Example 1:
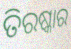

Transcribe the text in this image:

ତିରଷ୍କାର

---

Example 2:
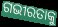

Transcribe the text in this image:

ଗଭୀରତାକୁ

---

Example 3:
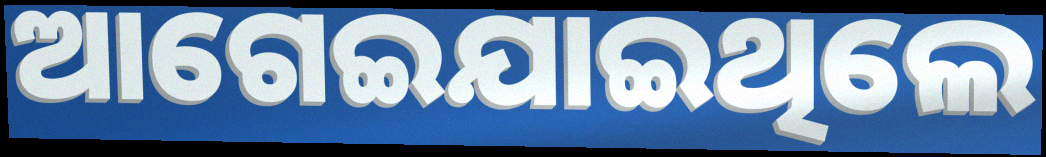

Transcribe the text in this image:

ଆଗେଇଯାଇଥିଲେ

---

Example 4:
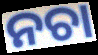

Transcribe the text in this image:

ନଚା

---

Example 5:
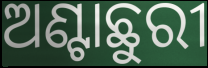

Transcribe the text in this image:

ଅଣ୍ଟାଛୁରୀ